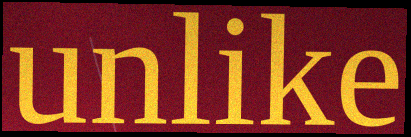
unlike